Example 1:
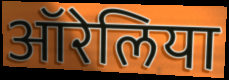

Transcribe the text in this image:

ऑरेलिया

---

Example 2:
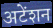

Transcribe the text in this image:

अटेंशन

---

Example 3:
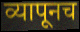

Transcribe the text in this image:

व्यापूनच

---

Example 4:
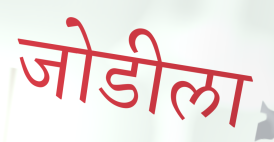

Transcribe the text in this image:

जोडीला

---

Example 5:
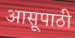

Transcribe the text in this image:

आसूपाठी